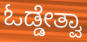
ಓಡ್ಡೇತ್ವಾ